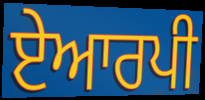
ਏਆਰਪੀ